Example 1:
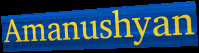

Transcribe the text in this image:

Amanushyan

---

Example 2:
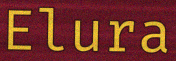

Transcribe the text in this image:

Elura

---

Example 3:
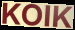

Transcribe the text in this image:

KOIK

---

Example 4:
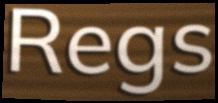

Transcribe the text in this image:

Regs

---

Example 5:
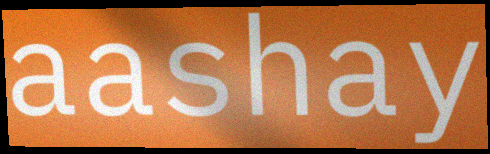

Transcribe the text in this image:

aashay